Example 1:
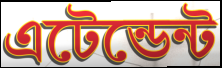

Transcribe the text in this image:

এটেন্ডেন্ট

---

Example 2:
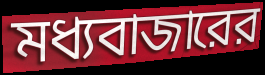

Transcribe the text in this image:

মধ্যবাজারের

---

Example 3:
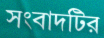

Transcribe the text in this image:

সংবাদটির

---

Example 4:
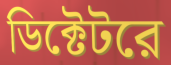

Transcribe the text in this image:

ডিক্টেটরে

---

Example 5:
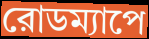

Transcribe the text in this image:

রোডম্যাপে